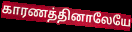
காரணத்தினாலேயே